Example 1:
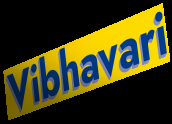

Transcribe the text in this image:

Vibhavari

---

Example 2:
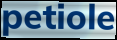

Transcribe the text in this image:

petiole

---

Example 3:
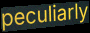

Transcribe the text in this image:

peculiarly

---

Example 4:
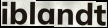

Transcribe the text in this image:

iblandt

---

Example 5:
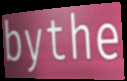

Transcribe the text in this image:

bythe